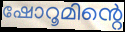
ഷോറൂമിന്റെ